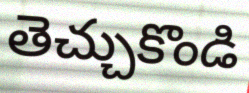
తెచ్చుకొండి